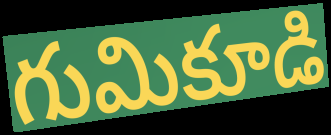
గుమికూడి